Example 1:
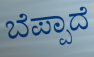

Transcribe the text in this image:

ಬೆಪ್ಪಾದೆ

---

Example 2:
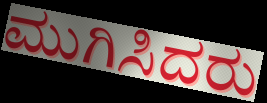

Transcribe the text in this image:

ಮುಗಿಸಿದರು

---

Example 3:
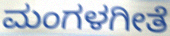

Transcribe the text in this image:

ಮಂಗಳಗೀತೆ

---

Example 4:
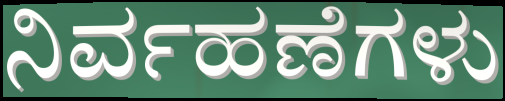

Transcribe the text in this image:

ನಿರ್ವಹಣೆಗಳು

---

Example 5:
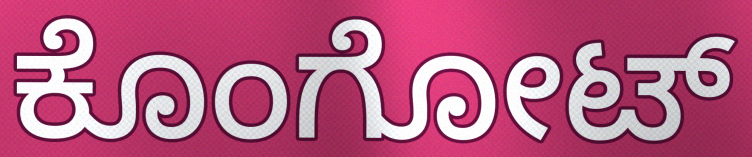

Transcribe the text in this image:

ಕೊಂಗೋಟ್